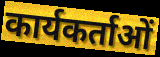
कार्यकर्ताओं